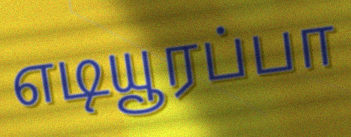
எடியூரப்பா